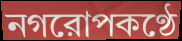
নগরোপকণ্ঠে